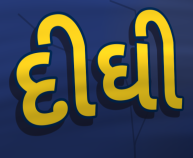
દીઘી